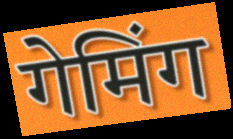
गेमिंग